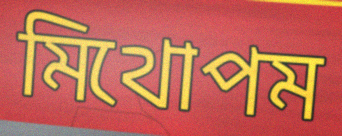
মিথোপম